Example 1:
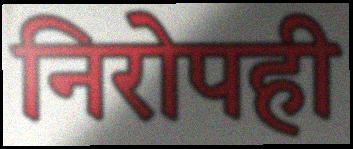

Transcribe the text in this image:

निरोपही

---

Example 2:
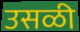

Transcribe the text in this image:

उसळी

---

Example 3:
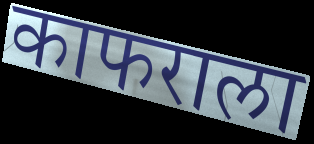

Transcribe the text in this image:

काफराला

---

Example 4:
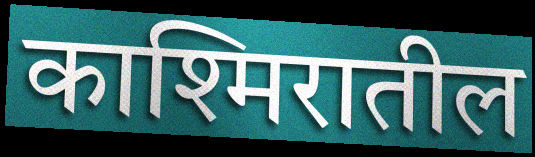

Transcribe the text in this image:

काश्मिरातील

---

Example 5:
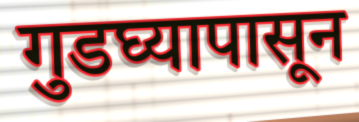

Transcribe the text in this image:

गुडघ्यापासून